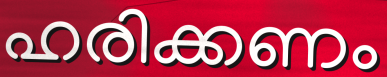
ഹരിക്കണം